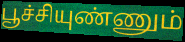
பூச்சியுண்ணும்